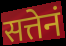
सत्तेनं